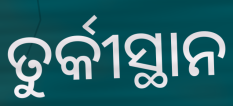
ତୁର୍କୀସ୍ଥାନ